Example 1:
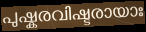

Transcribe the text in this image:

പുഷ്കരവിഷ്ടരായാഃ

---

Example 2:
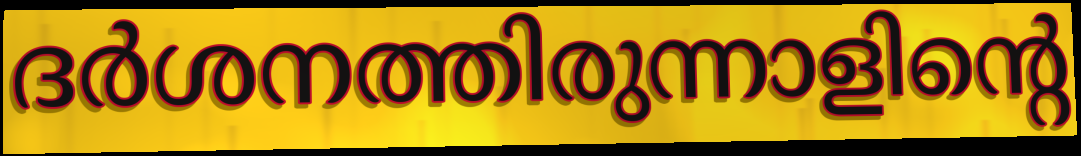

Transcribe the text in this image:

ദർശനത്തിരുന്നാളിന്റെ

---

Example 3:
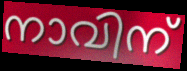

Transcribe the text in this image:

നാവിന്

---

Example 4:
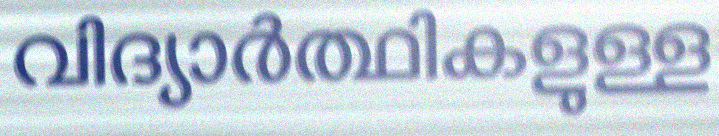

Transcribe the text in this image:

വിദ്യാർത്ഥികളുള്ള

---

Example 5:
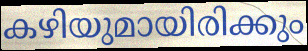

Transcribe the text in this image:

കഴിയുമായിരിക്കും